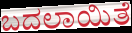
ಬದಲಾಯಿತೆ